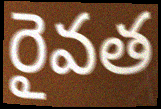
రైవత